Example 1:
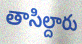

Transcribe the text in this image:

తాసిల్దారు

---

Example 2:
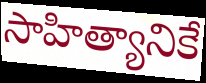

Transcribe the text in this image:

సాహిత్యానికే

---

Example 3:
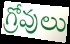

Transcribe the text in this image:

గ్రోవులు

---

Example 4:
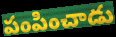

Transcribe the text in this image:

పంపించాడు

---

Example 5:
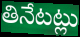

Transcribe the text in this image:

తినేటట్లు